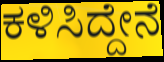
ಕಳಿಸಿದ್ದೇನೆ